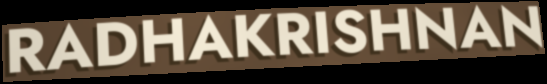
RADHAKRISHNAN